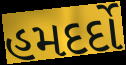
હમદર્દો